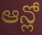
ఆన్లో